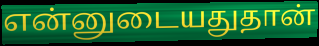
என்னுடையதுதான்